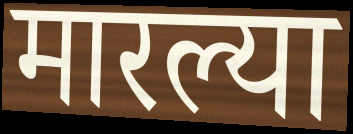
मारल्या